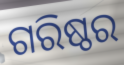
ଗରିଷ୍ଠର